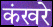
कंखरे